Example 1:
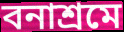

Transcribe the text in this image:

বনাশ্রমে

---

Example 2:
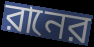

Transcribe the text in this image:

রানের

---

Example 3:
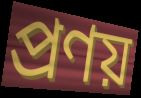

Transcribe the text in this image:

প্রণয়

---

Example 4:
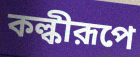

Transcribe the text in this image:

কল্কীরূপে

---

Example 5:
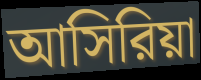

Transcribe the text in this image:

আসিরিয়া